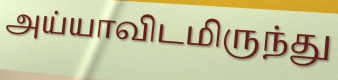
அய்யாவிடமிருந்து